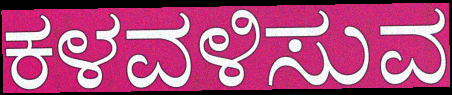
ಕಳವಳಿಸುವ